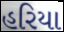
હરિયા